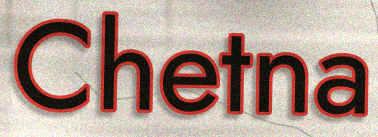
Chetna